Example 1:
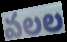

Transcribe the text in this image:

వలల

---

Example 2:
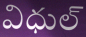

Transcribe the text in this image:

విధుల్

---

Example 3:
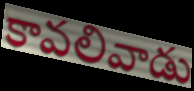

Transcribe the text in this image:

కావలివాడు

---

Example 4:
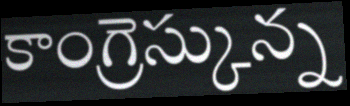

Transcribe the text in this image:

కాంగ్రెస్కున్న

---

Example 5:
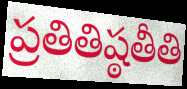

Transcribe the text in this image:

ప్రతితిష్ఠతీతి